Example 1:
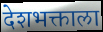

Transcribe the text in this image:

देशभक्ताला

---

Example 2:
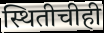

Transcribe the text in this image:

स्थितीचीही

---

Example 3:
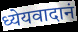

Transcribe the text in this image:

ध्येयवादानं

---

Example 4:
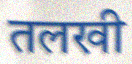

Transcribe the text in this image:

तलखी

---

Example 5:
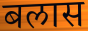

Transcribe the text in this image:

बलास